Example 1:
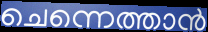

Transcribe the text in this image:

ചെന്നെത്താൻ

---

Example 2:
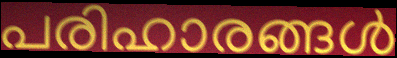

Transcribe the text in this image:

പരിഹാരങ്ങൾ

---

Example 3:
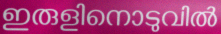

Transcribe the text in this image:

ഇരുളിനൊടുവിൽ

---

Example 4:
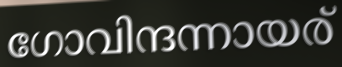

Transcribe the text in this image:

ഗോവിന്ദന്നായര്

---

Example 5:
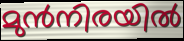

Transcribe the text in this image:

മുൻനിരയിൽ